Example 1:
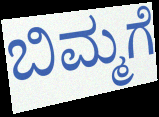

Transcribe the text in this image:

ಬಿಮ್ಮಗೆ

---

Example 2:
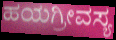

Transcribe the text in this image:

ಹಯಗ್ರೀವಸ್ಯ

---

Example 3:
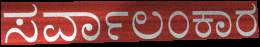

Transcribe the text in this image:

ಸರ್ವಾಲಂಕಾರ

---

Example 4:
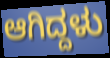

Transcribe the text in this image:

ಆಗಿದ್ದಳು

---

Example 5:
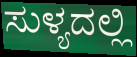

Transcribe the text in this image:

ಸುಳ್ಯದಲ್ಲಿ